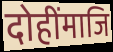
दोहींमाजि